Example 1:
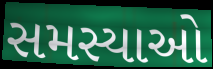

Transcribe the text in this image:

સમસ્યાઓ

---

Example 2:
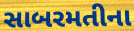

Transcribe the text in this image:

સાબરમતીના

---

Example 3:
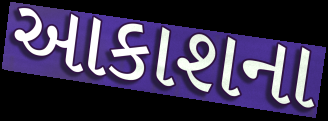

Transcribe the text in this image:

આકાશના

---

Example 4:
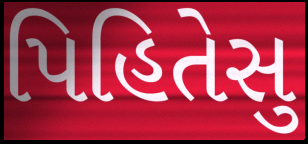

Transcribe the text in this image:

પિહિતેસુ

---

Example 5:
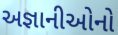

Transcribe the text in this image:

અજ્ઞાનીઓનો